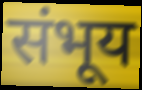
संभूय